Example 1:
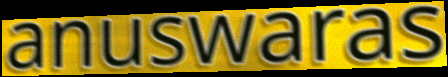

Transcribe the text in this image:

anuswaras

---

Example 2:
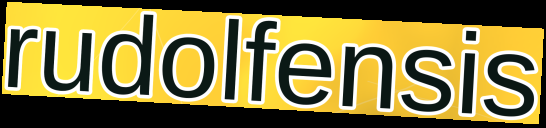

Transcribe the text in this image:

rudolfensis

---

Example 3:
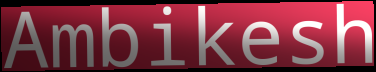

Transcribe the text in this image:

Ambikesh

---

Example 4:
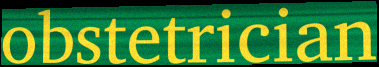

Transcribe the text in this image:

obstetrician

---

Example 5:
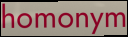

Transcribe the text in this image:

homonym